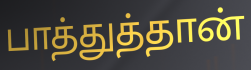
பாத்துத்தான்